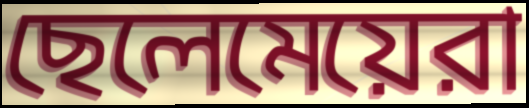
ছেলেমেয়েরা